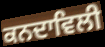
ਕਨਦਾਵਿਲੀ